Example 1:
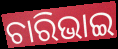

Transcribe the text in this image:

ଚାରିଭାଇ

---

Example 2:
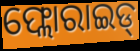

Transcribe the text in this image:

ଫ୍ଲୋରାଇଡ୍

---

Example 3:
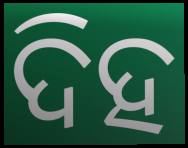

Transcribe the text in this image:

ଦିହ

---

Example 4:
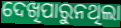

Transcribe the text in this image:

ଦେଖିପାରୁନଥିଲା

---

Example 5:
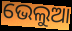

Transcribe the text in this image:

ଭେଲୁଆ